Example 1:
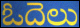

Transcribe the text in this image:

ఓదెలు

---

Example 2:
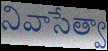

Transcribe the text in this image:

నివాసేత్వా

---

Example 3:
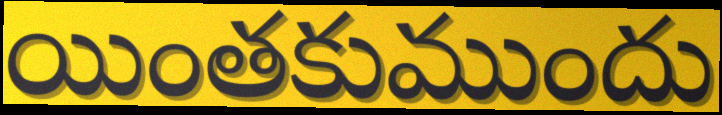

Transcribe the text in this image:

యింతకుముందు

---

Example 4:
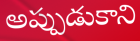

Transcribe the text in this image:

అప్పుడుకాని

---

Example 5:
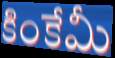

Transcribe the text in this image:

కింకేమీ